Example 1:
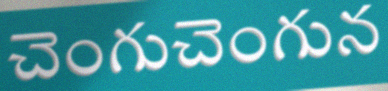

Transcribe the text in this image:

చెంగుచెంగున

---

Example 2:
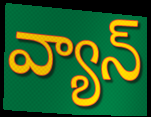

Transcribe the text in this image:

వ్యాన్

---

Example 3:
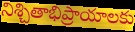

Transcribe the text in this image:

నిశ్చితాభిప్రాయాలకు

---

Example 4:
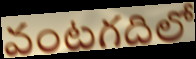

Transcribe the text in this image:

వంటగదిలో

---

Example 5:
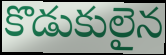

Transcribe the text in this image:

కొడుకులైన